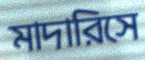
মাদারিসে